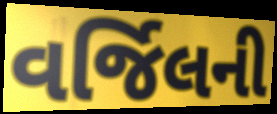
વર્જિલની